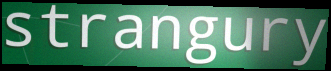
strangury